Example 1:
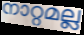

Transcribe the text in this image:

നാറ്റമല്ല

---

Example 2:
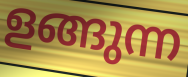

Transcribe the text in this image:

ളങ്ങുന്ന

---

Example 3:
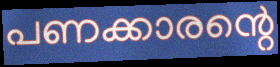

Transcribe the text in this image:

പണക്കാരന്റെ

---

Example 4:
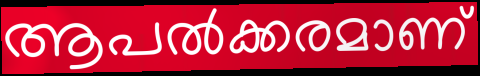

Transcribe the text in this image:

ആപൽക്കരമാണ്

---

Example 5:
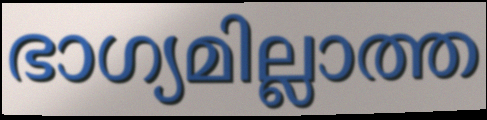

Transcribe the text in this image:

ഭാഗ്യമില്ലാത്ത